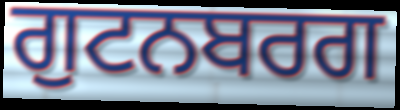
ਗੁਟਨਬਰਗ